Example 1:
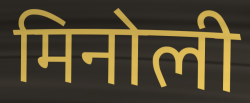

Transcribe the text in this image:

मिनोली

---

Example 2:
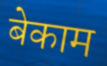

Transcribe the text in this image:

बेकाम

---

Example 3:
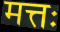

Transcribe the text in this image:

मत्तः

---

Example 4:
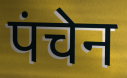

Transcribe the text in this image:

पंचेन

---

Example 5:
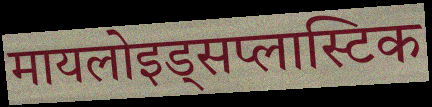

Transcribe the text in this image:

मायलोइड्सप्लास्टिक